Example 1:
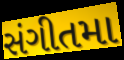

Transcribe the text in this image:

સંગીતમા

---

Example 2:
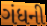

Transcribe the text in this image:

ગંધની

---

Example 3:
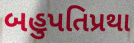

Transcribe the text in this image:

બહુપતિપ્રથા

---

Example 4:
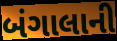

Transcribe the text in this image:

બંગાલાની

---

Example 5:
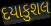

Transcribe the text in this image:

દયાકુશલ